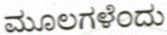
ಮೂಲಗಳೆಂದು